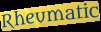
Rheumatic